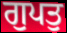
ਗੁਪਤੁ